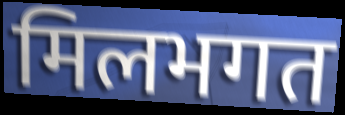
मिलभगत